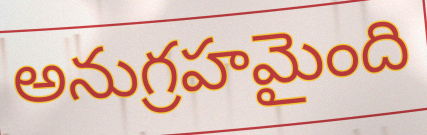
అనుగ్రహమైంది